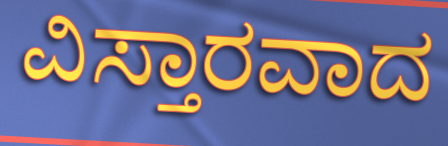
ವಿಸ್ತಾರವಾದ